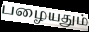
பழையதும்